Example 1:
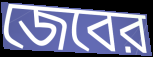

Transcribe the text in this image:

জেবের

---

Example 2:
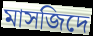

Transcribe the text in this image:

মাসজিদে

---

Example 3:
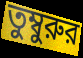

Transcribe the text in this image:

তুম্বুরুর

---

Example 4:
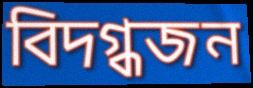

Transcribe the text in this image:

বিদগ্ধজন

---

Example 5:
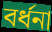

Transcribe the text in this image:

বর্ধনা